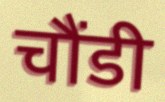
चौंडी